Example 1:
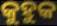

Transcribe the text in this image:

କୁହୁକ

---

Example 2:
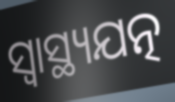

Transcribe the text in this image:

ସ୍ୱାସ୍ଥ୍ୟଯତ୍ନ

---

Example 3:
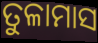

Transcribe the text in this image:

ତୁଳାମାସ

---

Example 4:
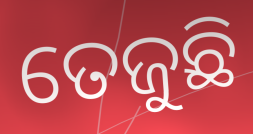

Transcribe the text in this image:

ତେଜୁଛି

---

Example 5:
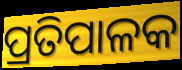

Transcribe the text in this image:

ପ୍ରତିପାଳକ